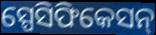
ସ୍ପେସିଫିକେସନ୍